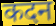
कदन